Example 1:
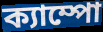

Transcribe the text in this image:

ক্যাম্পো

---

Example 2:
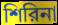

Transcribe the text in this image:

শিরিনা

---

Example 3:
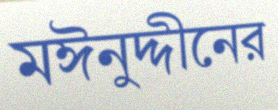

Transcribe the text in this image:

মঈনুদ্দীনের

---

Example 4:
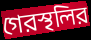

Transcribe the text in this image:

গেরস্থলির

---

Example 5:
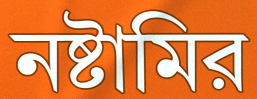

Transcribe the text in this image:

নষ্টামির